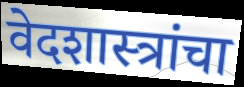
वेदशास्त्रांचा